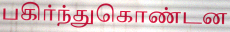
பகிர்ந்துகொண்டன